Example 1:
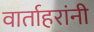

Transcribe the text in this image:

वार्ताहरांनी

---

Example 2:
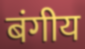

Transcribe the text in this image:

बंगीय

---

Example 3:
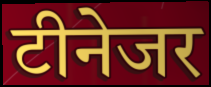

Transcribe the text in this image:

टीनेजर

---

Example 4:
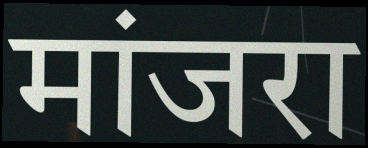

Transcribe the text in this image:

मांजरा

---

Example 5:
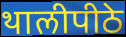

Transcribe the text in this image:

थालीपीठे